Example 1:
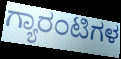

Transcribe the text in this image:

ಗ್ಯಾರಂಟಿಗಳ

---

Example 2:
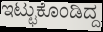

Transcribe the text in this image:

ಇಟ್ಟುಕೊಂಡಿದ್ದ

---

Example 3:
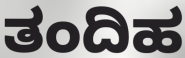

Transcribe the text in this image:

ತಂದಿಹ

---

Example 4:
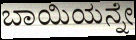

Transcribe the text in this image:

ಬಾಯಿಯನ್ನೇ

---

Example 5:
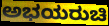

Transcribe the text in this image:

ಅಭಯರುಚಿ